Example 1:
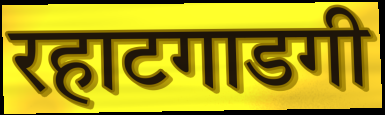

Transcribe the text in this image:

रहाटगाडगी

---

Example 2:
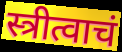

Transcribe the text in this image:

स्त्रीत्वाचं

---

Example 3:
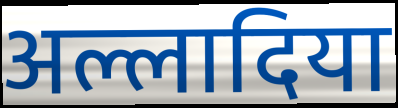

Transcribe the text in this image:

अल्लादिया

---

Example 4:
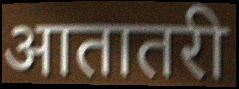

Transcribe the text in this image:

आतातरी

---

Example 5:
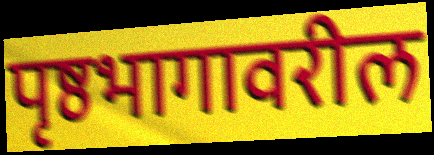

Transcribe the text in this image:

पृष्ठभागावरील